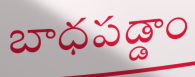
బాధపడ్డాం